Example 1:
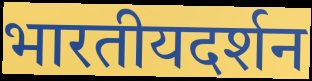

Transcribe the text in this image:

भारतीयदर्शन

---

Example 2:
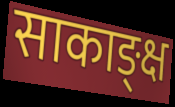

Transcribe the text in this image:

साकाङ्क्ष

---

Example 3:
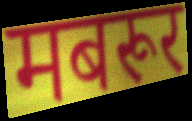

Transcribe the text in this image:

मबरूर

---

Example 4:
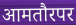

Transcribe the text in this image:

आमतौरपर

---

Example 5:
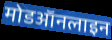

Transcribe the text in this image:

मोडऑनलाइन